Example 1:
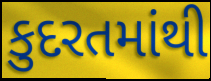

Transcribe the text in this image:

કુદરતમાંથી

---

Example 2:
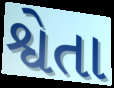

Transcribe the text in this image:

શ્વેતા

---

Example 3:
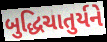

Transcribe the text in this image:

બુદ્ધિચાતુર્યને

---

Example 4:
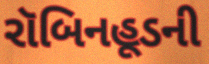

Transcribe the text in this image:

રૉબિનહૂડની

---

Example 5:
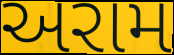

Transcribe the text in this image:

અરામ